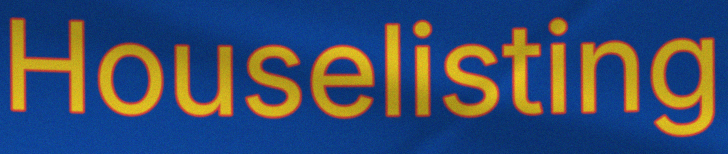
Houselisting